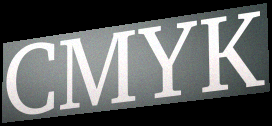
CMYK